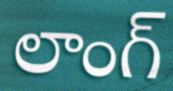
లాంగ్